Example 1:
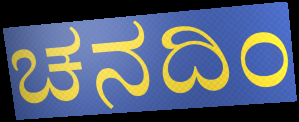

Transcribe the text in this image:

ಚನದಿಂ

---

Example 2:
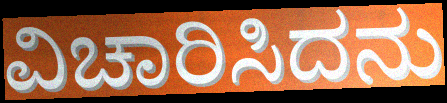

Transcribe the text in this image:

ವಿಚಾರಿಸಿದನು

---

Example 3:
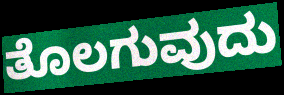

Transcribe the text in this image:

ತೊಲಗುವುದು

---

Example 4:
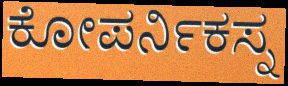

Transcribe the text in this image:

ಕೋಪರ್ನಿಕಸ್ನ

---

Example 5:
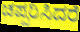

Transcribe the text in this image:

ಚಪ್ಪರಿಸಿದರೆ